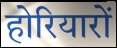
होरियारों